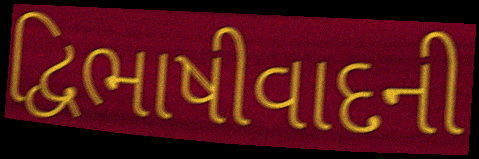
દ્વિભાષીવાદની